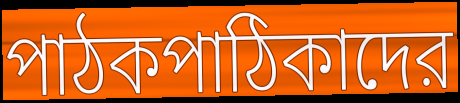
পাঠকপাঠিকাদের